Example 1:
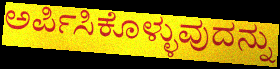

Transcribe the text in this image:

ಅರ್ಪಿಸಿಕೊಳ್ಳುವುದನ್ನು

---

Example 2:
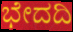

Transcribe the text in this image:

ಭೇದದಿ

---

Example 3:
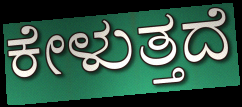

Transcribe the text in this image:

ಕೇಳುತ್ತದೆ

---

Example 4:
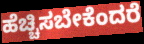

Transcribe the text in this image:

ಹೆಚ್ಚಿಸಬೇಕೆಂದರೆ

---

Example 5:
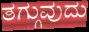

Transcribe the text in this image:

ತಗ್ಗುವುದು